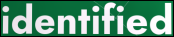
identified